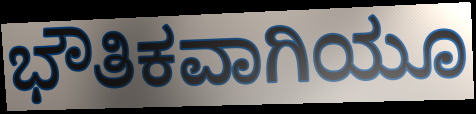
ಭೌತಿಕವಾಗಿಯೂ